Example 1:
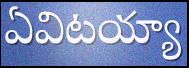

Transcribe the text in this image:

ఏవిటయ్యా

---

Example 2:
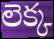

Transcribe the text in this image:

లెక్క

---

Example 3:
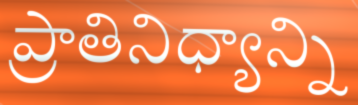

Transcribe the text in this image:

ప్రాతినిధ్యాన్ని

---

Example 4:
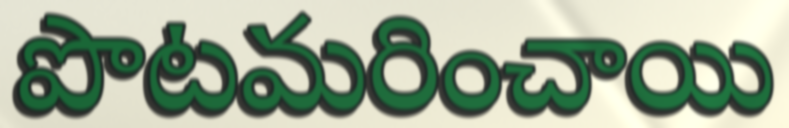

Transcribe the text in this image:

పొటమరించాయి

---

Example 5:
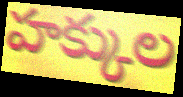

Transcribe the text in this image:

హక్కుల